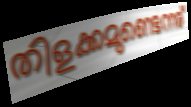
തിളക്കമുണ്ടെന്നു്